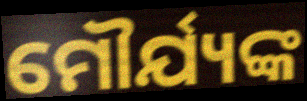
ମୌର୍ଯ୍ୟଙ୍କ